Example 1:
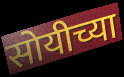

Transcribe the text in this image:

सोयीच्या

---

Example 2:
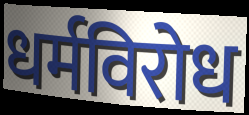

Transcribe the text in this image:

धर्मविरोध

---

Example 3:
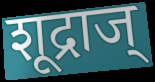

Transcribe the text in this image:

शूद्राज्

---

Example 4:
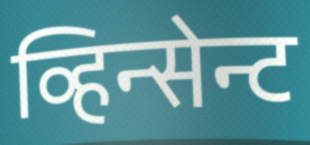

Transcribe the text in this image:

व्हिन्सेन्ट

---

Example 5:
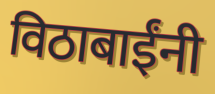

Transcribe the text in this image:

विठाबाईंनी